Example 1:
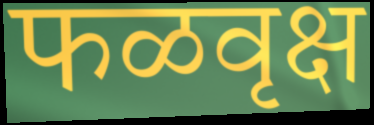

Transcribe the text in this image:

फळवृक्ष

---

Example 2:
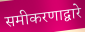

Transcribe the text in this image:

समीकरणाद्वारे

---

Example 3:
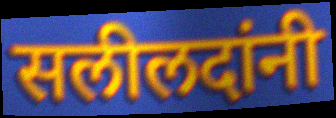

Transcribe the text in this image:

सलीलदांनी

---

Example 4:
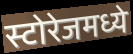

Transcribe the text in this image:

स्टोरेजमध्ये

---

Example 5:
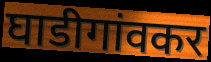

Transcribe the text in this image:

घाडीगांवकर